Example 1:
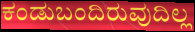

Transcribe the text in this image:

ಕಂಡುಬಂದಿರುವುದಿಲ್ಲ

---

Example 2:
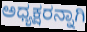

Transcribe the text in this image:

ಅಧ್ಯಕ್ಷರನ್ನಾಗಿ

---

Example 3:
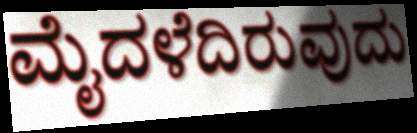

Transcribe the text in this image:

ಮೈದಳೆದಿರುವುದು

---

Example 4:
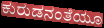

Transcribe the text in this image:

ಕುರುಡನಂತೆಯೂ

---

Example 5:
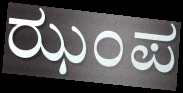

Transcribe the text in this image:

ಝಂಪ